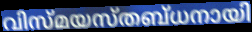
വിസ്മയസ്തബ്ധനായി